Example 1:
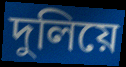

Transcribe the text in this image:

দুলিয়ে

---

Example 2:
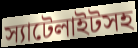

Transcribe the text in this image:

স্যাটেলাইটসহ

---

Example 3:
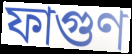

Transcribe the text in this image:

ফাগুণ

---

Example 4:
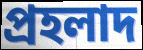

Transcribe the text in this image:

প্রহলাদ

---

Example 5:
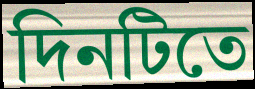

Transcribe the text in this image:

দিনটিতে